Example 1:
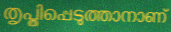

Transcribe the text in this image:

തൃപ്തിപ്പെടുത്താനാണ്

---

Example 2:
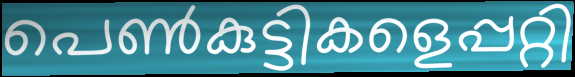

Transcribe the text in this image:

പെൺകുട്ടികളെപ്പറ്റി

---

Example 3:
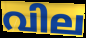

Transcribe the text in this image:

വില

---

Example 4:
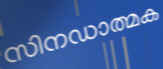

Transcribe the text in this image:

സിനഡാത്മക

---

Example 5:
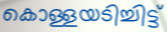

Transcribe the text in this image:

കൊള്ളയടിച്ചിട്ട്